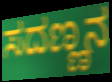
ಸದಣ್ಣನ